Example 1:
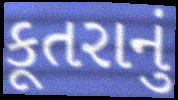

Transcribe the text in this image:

કૂતરાનું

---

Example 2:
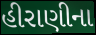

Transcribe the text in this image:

હીરાણીના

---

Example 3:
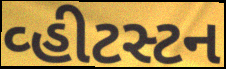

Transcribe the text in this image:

વ્હીટસ્ટન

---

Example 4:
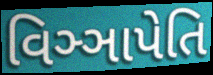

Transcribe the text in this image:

વિઞ્ઞાપેતિ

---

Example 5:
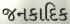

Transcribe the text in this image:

જનકાદિક